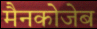
मैनकोजेब